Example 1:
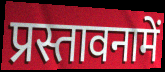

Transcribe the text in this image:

प्रस्तावनामें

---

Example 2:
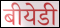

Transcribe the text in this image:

बीयेडी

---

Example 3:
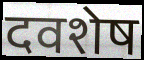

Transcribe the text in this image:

दवशेष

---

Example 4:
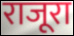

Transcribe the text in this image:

राजूरा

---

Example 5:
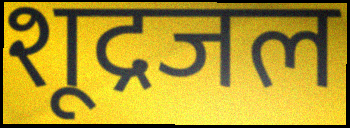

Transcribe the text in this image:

शूद्रजल